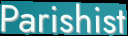
Parishist